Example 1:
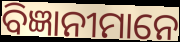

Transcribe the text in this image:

ବିଜ୍ଞାନୀମାନେ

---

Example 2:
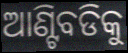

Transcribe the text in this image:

ଆଣ୍ଟିବଡିକୁ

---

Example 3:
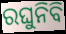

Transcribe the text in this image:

ରଘୁନିବି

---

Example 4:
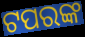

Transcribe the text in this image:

ଟପରଙ୍କ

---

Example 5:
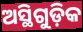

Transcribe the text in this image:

ଅସ୍ଥିଗୁଡ଼ିକ